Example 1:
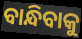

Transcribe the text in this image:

ବାନ୍ଧିବାକୁ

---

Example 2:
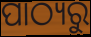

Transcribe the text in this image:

ପାଠ୍ୟରୁ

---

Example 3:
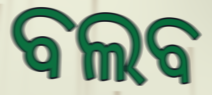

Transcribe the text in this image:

ବଲବ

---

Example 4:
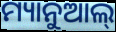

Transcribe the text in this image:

ମ୍ୟାନୁଆଲ୍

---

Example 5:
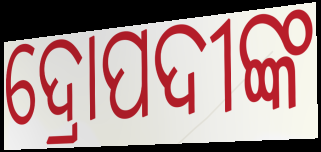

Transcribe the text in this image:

ଦ୍ରୋପଦୀଙ୍କ